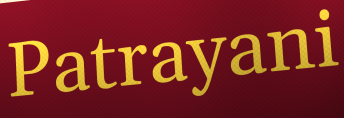
Patrayani